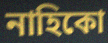
নাহিকো